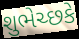
શુભેચ્છકે